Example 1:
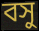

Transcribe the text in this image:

বসু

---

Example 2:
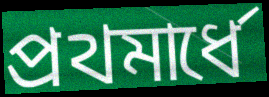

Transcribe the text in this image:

প্রথমার্ধে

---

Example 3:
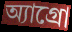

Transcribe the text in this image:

অ্যাগ্রো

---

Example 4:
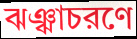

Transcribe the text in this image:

ঝঞ্ঝাচরণে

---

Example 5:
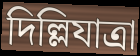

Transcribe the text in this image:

দিল্লিযাত্রা